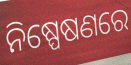
ନିଷ୍ପେଷଣରେ